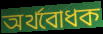
অর্থবোধক